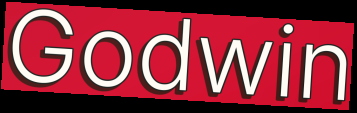
Godwin